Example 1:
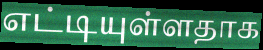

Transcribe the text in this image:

எட்டியுள்ளதாக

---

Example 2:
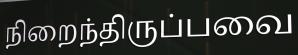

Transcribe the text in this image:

நிறைந்திருப்பவை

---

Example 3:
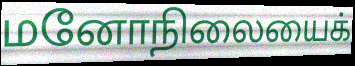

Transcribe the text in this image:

மனோநிலையைக்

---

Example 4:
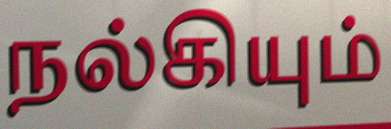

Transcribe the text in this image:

நல்கியும்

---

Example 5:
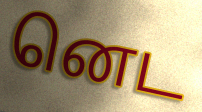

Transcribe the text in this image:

னெட